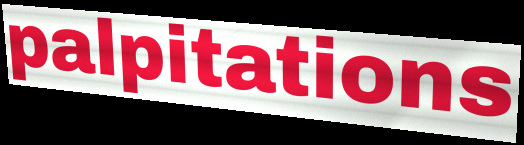
palpitations